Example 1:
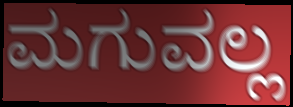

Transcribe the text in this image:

ಮಗುವಲ್ಲ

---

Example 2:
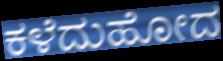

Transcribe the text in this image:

ಕಳೆದುಹೋದ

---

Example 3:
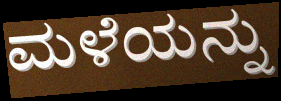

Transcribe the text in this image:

ಮಳೆಯನ್ನು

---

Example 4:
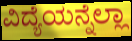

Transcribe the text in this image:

ವಿದ್ಯೆಯನ್ನೆಲ್ಲಾ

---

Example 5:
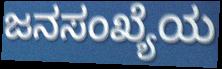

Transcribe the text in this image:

ಜನಸಂಖ್ಯೆಯ